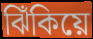
ঝিঁকিয়ে